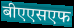
बीएएसएफ